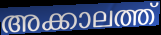
അക്കാലത്ത്